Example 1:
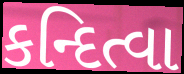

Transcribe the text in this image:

કન્દિત્વા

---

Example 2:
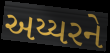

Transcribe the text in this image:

અય્યરને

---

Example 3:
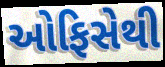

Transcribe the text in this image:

ઓફિસેથી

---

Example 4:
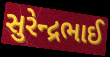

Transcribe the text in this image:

સુરેન્દ્રભાઈ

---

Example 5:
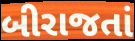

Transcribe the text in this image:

બીરાજતાં